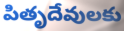
పితృదేవులకు